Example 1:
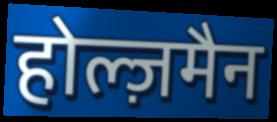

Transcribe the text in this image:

होल्ज़मैन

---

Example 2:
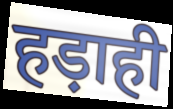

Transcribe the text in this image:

हड़ाही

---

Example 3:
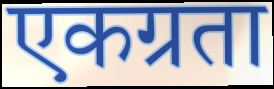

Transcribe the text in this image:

एकग्रता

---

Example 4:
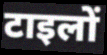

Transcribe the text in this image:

टाइलों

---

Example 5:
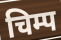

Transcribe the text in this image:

चिम्प